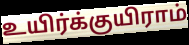
உயிர்க்குயிராம்